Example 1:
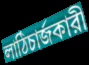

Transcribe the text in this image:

লাঠিচার্জকারী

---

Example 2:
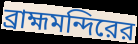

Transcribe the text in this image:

ব্রাহ্মমন্দিরের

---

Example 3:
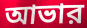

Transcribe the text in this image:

আভার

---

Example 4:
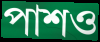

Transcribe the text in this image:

পাশও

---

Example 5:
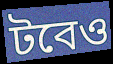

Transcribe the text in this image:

টবেও